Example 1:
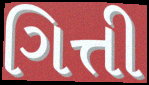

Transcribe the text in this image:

ગિત્તી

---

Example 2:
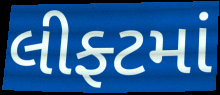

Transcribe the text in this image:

લીફ્ટમાં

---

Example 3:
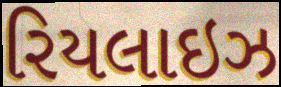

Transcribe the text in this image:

રિયલાઇઝ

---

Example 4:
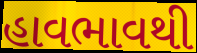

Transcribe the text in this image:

હાવભાવથી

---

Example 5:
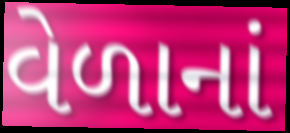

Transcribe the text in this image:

વેળાનાં